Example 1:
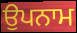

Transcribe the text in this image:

ਉਪਨਾਮ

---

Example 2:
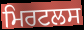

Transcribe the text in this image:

ਮਿਰਟਲਸ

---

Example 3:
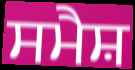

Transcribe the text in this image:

ਸਮੈਸ਼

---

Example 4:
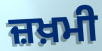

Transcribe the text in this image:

ਜ਼ਖ਼ਮੀ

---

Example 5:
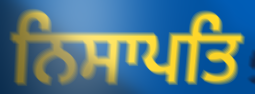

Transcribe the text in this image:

ਨਿਸਾਪਤਿ